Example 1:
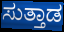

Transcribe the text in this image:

ಸುತ್ತಾಡ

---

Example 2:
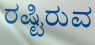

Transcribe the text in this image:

ರಷ್ಟಿರುವ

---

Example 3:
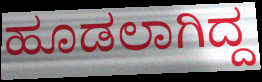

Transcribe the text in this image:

ಹೂಡಲಾಗಿದ್ದ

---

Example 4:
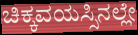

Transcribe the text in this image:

ಚಿಕ್ಕವಯಸ್ಸಿನಲ್ಲೇ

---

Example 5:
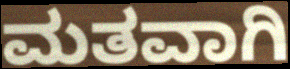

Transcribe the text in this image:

ಮತವಾಗಿ